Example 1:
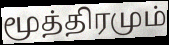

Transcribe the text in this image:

மூத்திரமும்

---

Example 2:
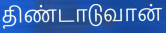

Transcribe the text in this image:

திண்டாடுவான்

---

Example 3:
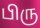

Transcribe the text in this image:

பிரு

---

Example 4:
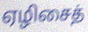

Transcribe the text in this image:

ஏழிசைத்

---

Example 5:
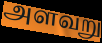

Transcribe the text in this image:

அளவறு